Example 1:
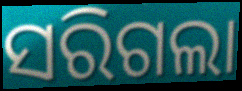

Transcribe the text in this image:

ସରିଗଲା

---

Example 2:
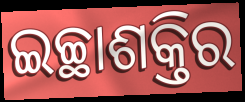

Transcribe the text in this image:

ଇଚ୍ଛାଶକ୍ତିର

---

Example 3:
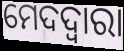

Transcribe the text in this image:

ମେଦଦ୍ଵାରା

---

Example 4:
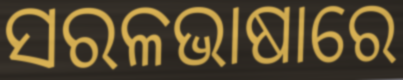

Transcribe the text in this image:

ସରଳଭାଷାରେ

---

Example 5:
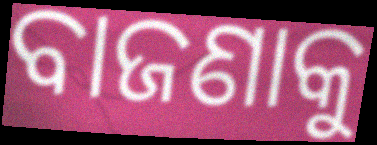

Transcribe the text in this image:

ବାଜଣାକୁ